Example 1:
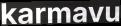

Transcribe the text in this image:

karmavu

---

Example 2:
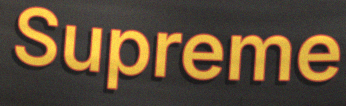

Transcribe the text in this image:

Supreme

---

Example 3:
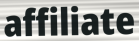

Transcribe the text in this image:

affiliate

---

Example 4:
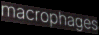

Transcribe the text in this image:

macrophages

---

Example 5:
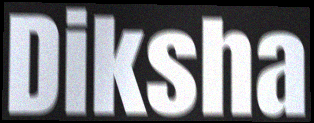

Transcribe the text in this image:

Diksha